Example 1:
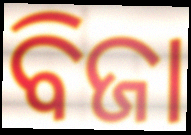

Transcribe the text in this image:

ବିଜା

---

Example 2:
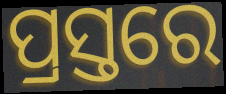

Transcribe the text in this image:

ପ୍ରସ୍ତରେ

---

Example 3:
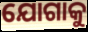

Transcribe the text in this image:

ଯୋଗାକୁ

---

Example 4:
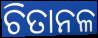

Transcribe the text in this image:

ଚିତାନଳ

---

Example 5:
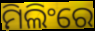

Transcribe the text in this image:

ମିଲିଂରେ